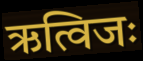
ऋत्विजः